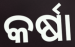
କର୍ଷା